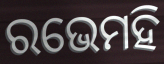
ରଭେମହି